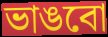
ভাঙবো